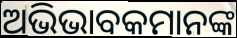
ଅଭିଭାବକମାନଙ୍କ